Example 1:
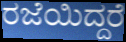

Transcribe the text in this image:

ರಜೆಯಿದ್ದರೆ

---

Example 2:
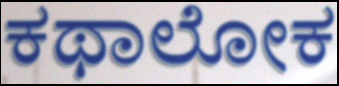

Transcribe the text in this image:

ಕಥಾಲೋಕ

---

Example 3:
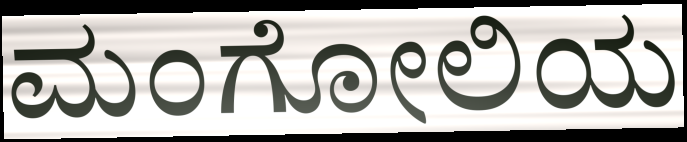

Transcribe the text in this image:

ಮಂಗೋಲಿಯ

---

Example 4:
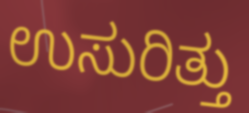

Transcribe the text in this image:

ಉಸುರಿತ್ತು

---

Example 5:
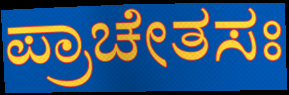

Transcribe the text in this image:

ಪ್ರಾಚೇತಸಃ